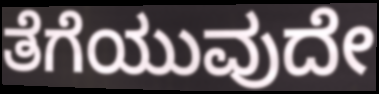
ತೆಗೆಯುವುದೇ